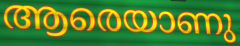
ആരെയാണു